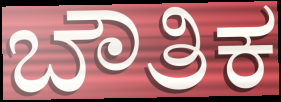
ಬೌತಿಕ